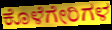
ಕೊಳೆಗೇರಿಗಳ